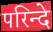
परिन्दे